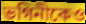
ভগিনীকেও